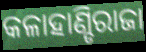
କଳାହାଣ୍ଡିରାଜା